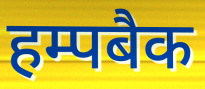
हम्पबैक